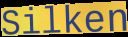
Silken